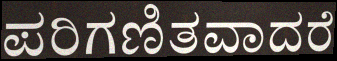
ಪರಿಗಣಿತವಾದರೆ